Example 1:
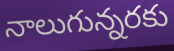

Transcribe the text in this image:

నాలుగున్నరకు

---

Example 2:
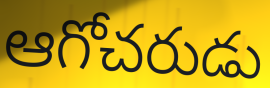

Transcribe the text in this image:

ఆగోచరుడు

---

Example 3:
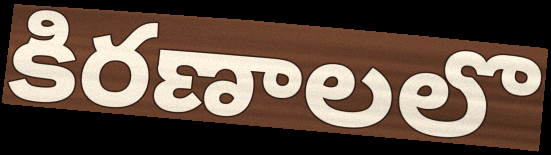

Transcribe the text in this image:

కిరణాలలొ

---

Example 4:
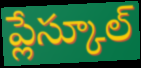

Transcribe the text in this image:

ప్లేస్కూల్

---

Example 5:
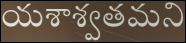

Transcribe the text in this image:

యశాశ్వతమని